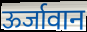
ऊर्जावान